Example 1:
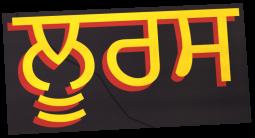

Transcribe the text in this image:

ਲੂਰਸ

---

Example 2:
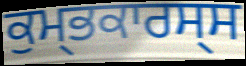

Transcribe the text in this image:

ਕੁਮ੍ਭਕਾਰਸ੍ਸ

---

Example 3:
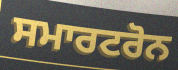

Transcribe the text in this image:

ਸਮਾਰਟਰੋਨ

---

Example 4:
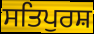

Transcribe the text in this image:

ਸਤਿਪੁਰਸ਼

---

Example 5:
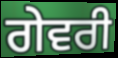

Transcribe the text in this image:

ਗੇਵਰੀ